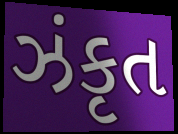
ઝંકૃત